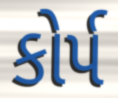
કોર્પ